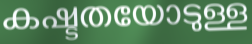
കഷ്ടതയോടുള്ള